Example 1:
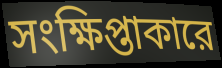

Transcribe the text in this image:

সংক্ষিপ্তাকারে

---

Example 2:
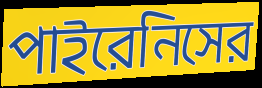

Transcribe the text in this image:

পাইরেনিসের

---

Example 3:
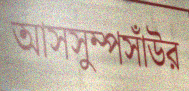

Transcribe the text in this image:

আসসুম্পসাঁউর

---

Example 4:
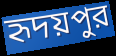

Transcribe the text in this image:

হৃদয়পুর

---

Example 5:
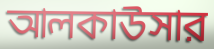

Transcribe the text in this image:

আলকাউসার